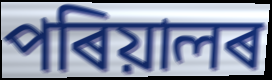
পৰিয়ালৰ